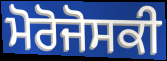
ਮੋਰੋਜੋਸਕੀ